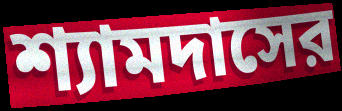
শ্যামদাসের